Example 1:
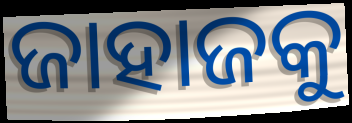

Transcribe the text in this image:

ଜାହାଜକୁ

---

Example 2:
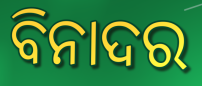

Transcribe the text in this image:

ବିନାଦର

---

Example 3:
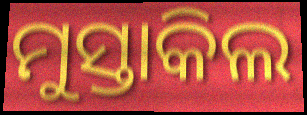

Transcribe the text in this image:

ମୁସ୍ତାକିଲ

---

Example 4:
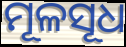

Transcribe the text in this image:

ମୂଳସୂଧ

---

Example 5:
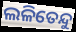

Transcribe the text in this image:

ଲଳିତେନ୍ଦୁ